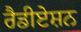
ਰੈਡੀਏਸ਼ਨ